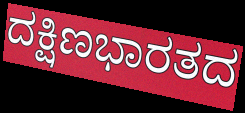
ದಕ್ಷಿಣಭಾರತದ